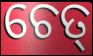
ଚେତ୍